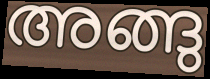
അങ്ങു